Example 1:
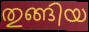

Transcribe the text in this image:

തുങ്ങിയ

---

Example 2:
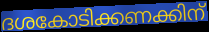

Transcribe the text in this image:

ദശകോടിക്കണക്കിന്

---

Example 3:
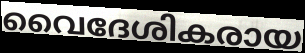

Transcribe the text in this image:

വൈദേശികരായ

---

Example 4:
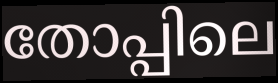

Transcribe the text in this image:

തോപ്പിലെ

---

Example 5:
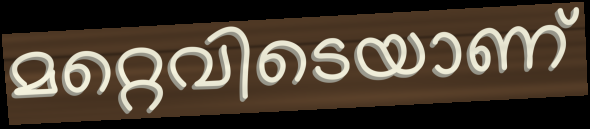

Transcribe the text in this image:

മറ്റെവിടെയാണ്